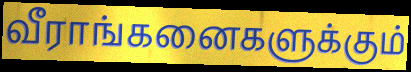
வீராங்கனைகளுக்கும்